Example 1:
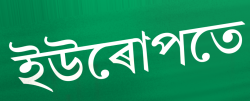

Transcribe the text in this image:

ইউৰোপতে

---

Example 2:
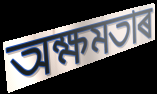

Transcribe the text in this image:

অক্ষমতাৰ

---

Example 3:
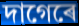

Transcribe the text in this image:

দাগেৰে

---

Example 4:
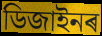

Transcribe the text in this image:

ডিজাইনৰ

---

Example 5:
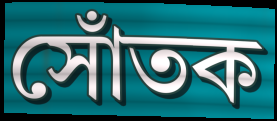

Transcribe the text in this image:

সোঁতক